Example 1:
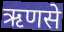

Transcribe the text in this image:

ऋणसे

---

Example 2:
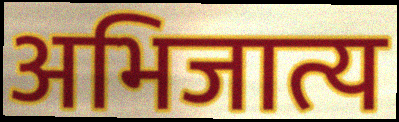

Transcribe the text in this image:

अभिजात्य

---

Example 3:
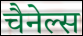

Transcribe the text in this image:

चैनेल्स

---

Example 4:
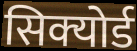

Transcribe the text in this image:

सिक्‍योर्ड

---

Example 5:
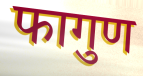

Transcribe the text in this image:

फागुण